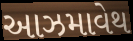
આઝમાવેથ